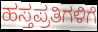
ಹಸ್ತಪ್ರತಿಗಳಿಗೆ